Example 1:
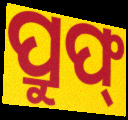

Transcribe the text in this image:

ପ୍ରୁଫ୍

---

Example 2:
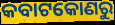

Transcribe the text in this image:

କବାଟକୋଣରୁ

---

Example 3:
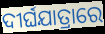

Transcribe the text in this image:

ଦୀର୍ଘଯାତ୍ରାରେ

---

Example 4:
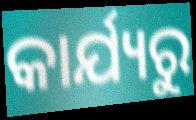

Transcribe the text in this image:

କାର୍ଯ୍ୟରୁ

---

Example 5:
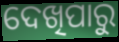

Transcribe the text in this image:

ଦେଖିପାରୁ